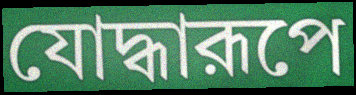
যোদ্ধারূপে